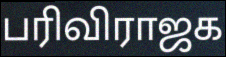
பரிவிராஜக